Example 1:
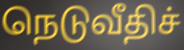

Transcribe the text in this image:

நெடுவீதிச்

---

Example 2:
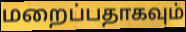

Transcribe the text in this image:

மறைப்பதாகவும்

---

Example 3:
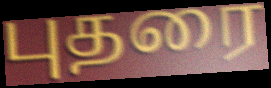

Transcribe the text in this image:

புதரை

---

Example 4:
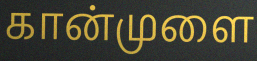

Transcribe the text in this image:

கான்முளை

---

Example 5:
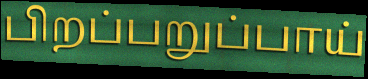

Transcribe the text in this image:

பிறப்பறுப்பாய்